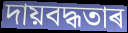
দায়বদ্ধতাৰ